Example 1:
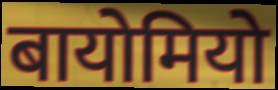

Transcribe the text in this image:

बायोमियो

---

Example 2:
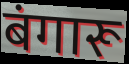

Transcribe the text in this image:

बंगारू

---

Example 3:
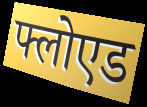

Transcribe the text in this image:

फ्लोएड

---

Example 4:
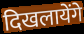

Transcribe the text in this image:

दिखलायेंगे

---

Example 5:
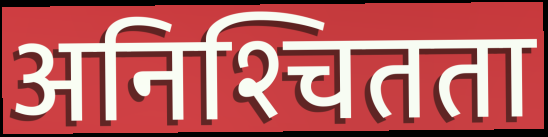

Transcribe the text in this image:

अनिश्चितता